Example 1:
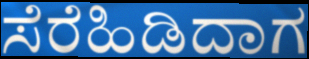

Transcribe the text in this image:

ಸೆರೆಹಿಡಿದಾಗ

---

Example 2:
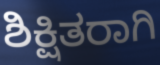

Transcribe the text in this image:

ಶಿಕ್ಷಿತರಾಗಿ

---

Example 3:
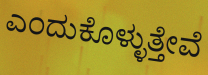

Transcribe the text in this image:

ಎಂದುಕೊಳ್ಳುತ್ತೇವೆ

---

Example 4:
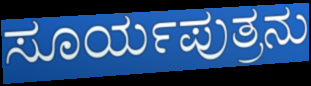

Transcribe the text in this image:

ಸೂರ್ಯಪುತ್ರನು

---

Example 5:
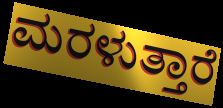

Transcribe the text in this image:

ಮರಳುತ್ತಾರೆ